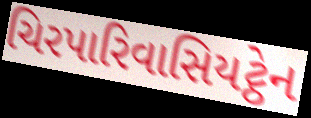
ચિરપારિવાસિયટ્ઠેન